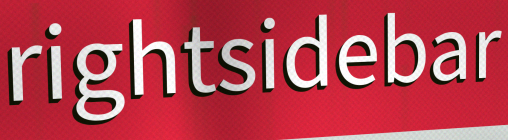
rightsidebar